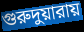
গুরুদুয়ারায়